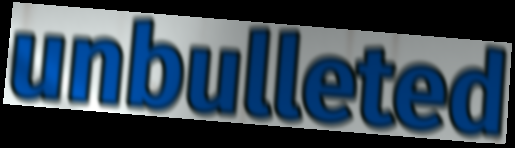
unbulleted